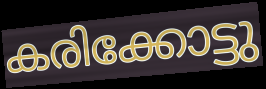
കരിക്കോട്ടു